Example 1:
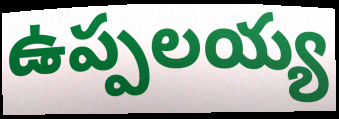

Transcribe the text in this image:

ఉప్పలయ్య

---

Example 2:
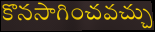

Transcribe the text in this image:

కొనసాగించవచ్చు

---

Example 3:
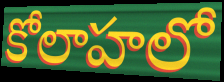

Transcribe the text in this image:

కోలాహలో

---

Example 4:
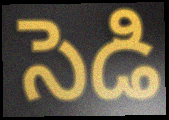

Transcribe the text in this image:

సెడి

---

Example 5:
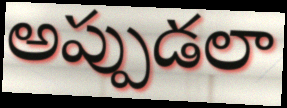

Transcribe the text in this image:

అప్పుడలా